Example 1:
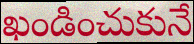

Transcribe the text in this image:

ఖండించుకునే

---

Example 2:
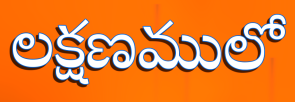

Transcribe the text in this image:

లక్షణములో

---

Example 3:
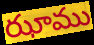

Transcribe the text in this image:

ఝాము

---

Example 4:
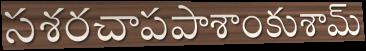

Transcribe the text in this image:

సశరచాపపాశాంకుశామ్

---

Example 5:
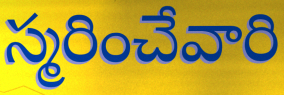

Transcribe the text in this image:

స్మరించేవారి